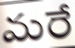
మరే